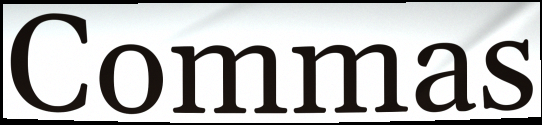
Commas